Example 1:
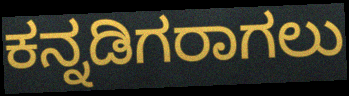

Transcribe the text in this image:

ಕನ್ನಡಿಗರಾಗಲು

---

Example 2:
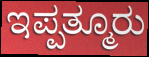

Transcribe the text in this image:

ಇಪ್ಪತ್ಮೂರು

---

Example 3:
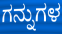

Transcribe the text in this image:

ಗನ್ನುಗಳ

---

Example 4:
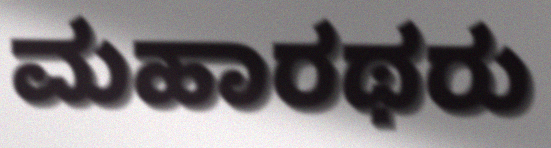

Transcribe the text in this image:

ಮಹಾರಥರು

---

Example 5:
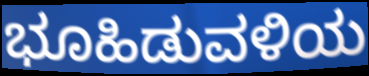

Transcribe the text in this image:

ಭೂಹಿಡುವಳಿಯ